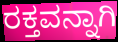
ರಕ್ತವನ್ನಾಗಿ